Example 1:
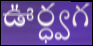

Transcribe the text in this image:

ఊర్ధ్వగ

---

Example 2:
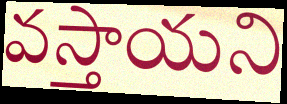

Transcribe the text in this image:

వస్తాయని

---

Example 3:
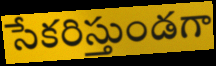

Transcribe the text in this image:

సేకరిస్తుండగా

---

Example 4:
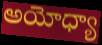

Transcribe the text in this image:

అయోధ్యా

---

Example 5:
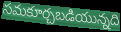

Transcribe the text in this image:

సమకూర్చబడియున్నది